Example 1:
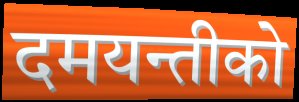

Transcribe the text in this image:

दमयन्तीको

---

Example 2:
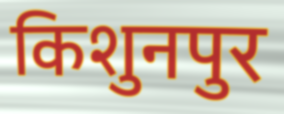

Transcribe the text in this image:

किशुनपुर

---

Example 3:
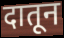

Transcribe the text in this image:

दातून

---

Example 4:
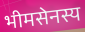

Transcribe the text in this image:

भीमसेनस्य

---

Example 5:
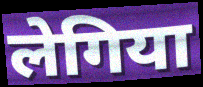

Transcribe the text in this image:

लेगिया